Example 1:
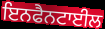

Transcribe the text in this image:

ਇਨਫੈਨਟਾਈਲ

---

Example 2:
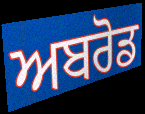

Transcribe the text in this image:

ਅਬਰੋਡ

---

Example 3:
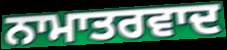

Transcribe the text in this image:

ਨਾਮਾਤਰਵਾਦ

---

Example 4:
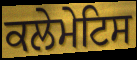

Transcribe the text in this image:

ਕਲੇਮੇਟਿਸ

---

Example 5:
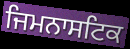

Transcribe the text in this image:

ਜਿਮਨਾਸਟਿਕ